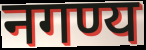
नगण्य